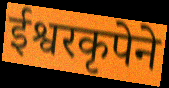
ईश्वरकृपेने